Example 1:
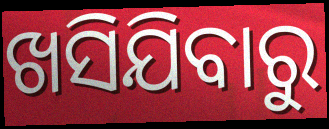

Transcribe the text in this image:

ଖସିଯିବାରୁ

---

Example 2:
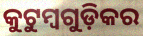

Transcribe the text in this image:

କୁଟୁମ୍ବଗୁଡ଼ିକର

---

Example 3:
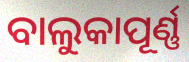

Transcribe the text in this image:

ବାଲୁକାପୂର୍ଣ୍ଣ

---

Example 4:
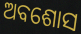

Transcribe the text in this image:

ଅବଶୋସ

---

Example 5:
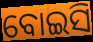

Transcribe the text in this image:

ବୋଇସି